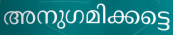
അനുഗമിക്കട്ടെ